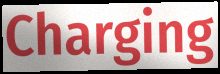
Charging